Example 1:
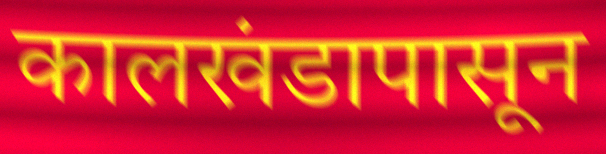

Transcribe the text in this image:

कालखंडापासून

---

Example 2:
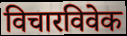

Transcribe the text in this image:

विचारविवेक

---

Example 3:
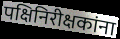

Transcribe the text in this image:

पक्षिनिरीक्षकांना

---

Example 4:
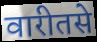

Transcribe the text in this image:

वारीतसे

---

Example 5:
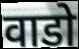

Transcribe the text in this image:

वाडो